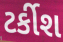
ટર્કીશ